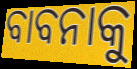
ବାବନାକୁ